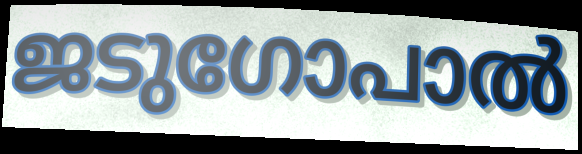
ജടുഗോപാൽ